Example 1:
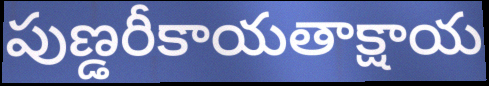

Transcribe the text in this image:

పుణ్డరీకాయతాక్షాయ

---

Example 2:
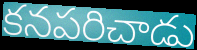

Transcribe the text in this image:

కనపరిచాడు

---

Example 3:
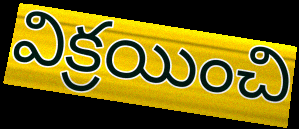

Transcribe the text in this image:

విక్రయించి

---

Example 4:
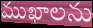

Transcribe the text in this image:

ముఖాలను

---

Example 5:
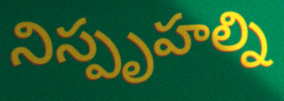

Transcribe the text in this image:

నిస్పృహల్ని